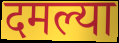
दमल्या